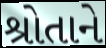
શ્રોતાને